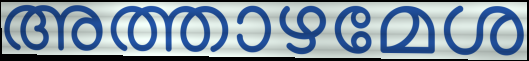
അത്താഴമേശ